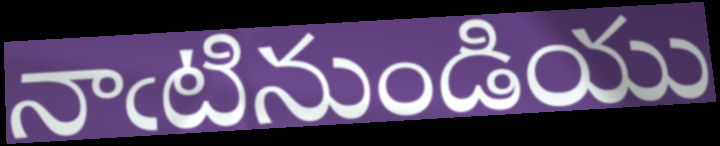
నాఁటినుండియు